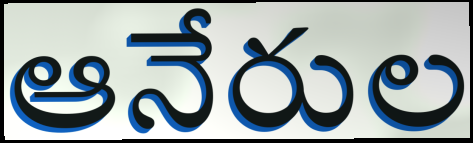
ఆనేరుల